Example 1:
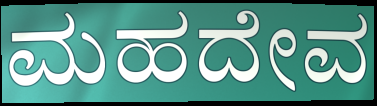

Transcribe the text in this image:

ಮಹದೇವ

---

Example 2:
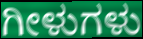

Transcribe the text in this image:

ಗೀಳುಗಳು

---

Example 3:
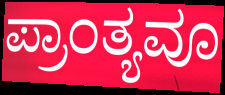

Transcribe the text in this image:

ಪ್ರಾಂತ್ಯವೂ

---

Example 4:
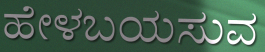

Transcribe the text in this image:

ಹೇಳಬಯಸುವ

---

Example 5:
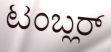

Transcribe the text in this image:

ಟಂಬ್ಲರ್